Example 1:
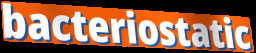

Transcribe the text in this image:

bacteriostatic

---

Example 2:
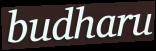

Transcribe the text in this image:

budharu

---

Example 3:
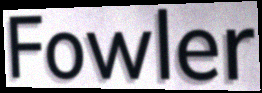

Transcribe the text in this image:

Fowler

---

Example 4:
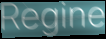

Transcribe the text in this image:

Regine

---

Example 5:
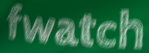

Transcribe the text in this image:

fwatch